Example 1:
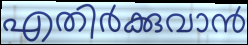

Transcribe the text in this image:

എതിർക്കുവാൻ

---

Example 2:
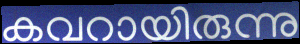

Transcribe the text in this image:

കവറായിരുന്നു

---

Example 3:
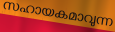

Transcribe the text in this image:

സഹായകമാവുന്ന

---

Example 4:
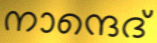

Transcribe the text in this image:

നാന്ദെദ്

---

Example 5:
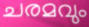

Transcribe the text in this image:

ചരമവും